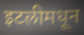
इटलीमधून